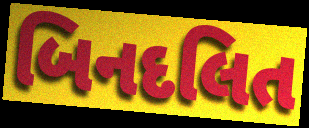
બિનદલિત